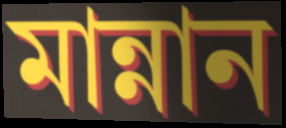
মান্নান